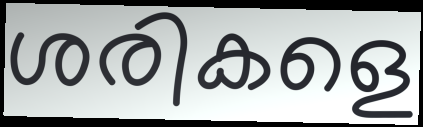
ശരികളെ